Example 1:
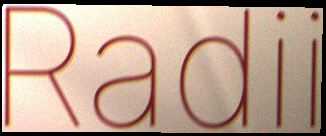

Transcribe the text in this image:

Radii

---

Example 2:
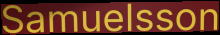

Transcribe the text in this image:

Samuelsson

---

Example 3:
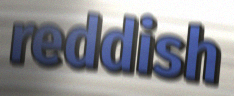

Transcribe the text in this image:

reddish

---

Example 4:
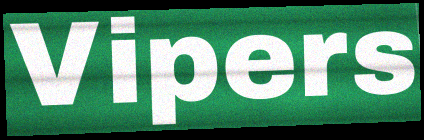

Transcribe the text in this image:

Vipers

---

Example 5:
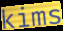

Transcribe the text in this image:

kims